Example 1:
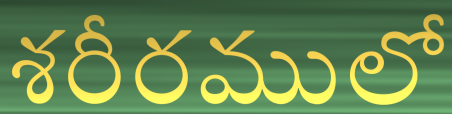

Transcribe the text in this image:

శరీరములో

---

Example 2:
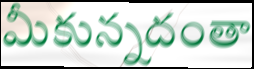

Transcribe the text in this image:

మీకున్నదంతా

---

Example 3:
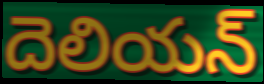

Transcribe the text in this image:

దెలియన్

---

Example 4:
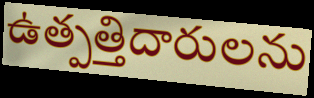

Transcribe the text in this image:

ఉత్పత్తిదారులను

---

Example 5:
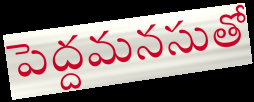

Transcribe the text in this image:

పెద్దమనసుతో